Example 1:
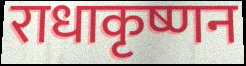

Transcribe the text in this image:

राधाकृष्णन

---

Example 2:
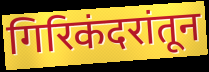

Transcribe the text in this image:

गिरिकंदरांतून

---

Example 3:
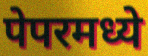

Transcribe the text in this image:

पेपरमध्ये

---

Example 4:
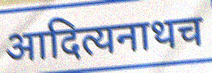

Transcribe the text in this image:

आदित्यनाथच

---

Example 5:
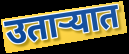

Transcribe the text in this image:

उताऱ्यात